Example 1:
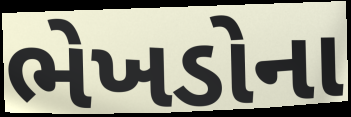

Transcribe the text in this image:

ભેખડોના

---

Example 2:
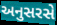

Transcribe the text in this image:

અનુસરસે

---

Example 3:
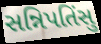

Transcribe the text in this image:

સન્નિપતિંસુ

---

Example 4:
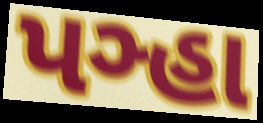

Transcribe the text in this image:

પઞ્હા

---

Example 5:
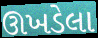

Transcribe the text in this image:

ઊખડેલા